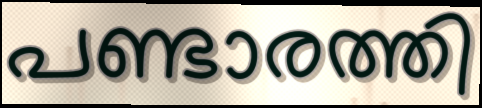
പണ്ടാരത്തി